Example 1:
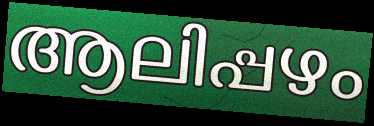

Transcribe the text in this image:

ആലിപ്പഴം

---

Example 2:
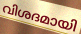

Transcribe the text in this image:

വിശദമായി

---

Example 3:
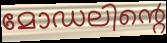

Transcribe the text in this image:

മോഡലിന്റെ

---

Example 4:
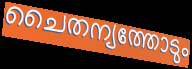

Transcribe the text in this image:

ചൈതന്യത്തോടും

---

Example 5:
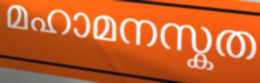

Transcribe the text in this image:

മഹാമനസ്കത